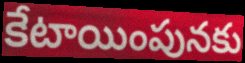
కేటాయింపునకు